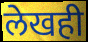
लेखही